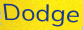
Dodge